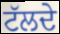
ਟੱਲਦੇ